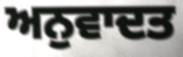
ਅਨੁਵਾਦਤ